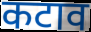
कटाव